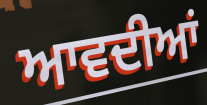
ਆਵਦੀਆਂ